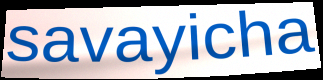
savayicha